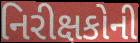
નિરીક્ષકોની